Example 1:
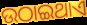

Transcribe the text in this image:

ଉଠାଇଥାଏ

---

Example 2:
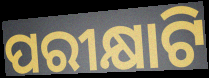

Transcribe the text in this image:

ପରୀକ୍ଷାଟି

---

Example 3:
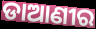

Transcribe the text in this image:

ଡାଆଣୀର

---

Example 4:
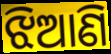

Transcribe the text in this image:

ଝିଆଣି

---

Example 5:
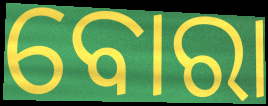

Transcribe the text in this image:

ବୋରା